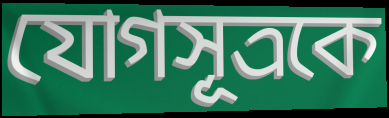
যোগসূত্রকে